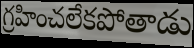
గ్రహించలేకపోతాడు